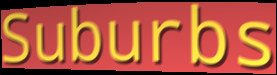
Suburbs